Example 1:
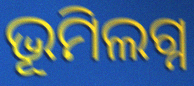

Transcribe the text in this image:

ଭୂମିଲଗ୍ନ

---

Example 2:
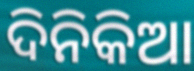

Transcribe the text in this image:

ଦିନିକିଆ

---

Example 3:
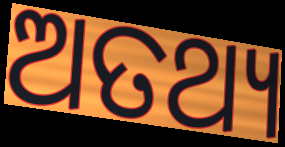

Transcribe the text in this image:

ଅତଥ୍ୟ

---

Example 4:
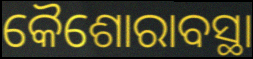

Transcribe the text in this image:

କୈଶୋରାବସ୍ଥା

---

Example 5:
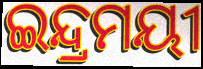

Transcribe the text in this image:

ଇନ୍ଦ୍ରମୟୀ